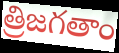
త్రిజగతాం